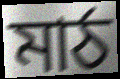
মাঠ